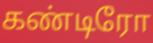
கண்டிரோ